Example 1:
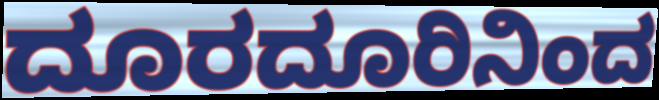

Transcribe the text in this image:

ದೂರದೂರಿನಿಂದ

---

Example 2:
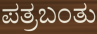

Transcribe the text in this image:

ಪತ್ರಬಂತು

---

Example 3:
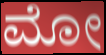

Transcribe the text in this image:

ಮೋ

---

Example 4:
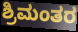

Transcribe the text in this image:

ಶ್ರಿಮಂತರ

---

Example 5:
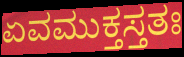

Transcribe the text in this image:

ಏವಮುಕ್ತಸ್ತತಃ